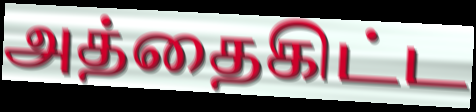
அத்தைகிட்ட